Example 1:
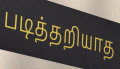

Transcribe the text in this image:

படித்தறியாத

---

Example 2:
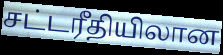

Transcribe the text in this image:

சட்டரீதியிலான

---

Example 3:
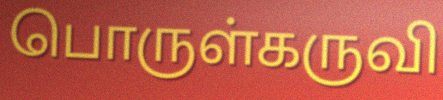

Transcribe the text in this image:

பொருள்கருவி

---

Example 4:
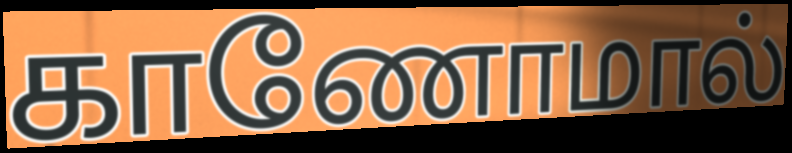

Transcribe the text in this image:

காணோமால்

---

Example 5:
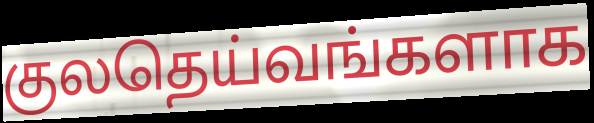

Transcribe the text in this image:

குலதெய்வங்களாக